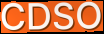
CDSO